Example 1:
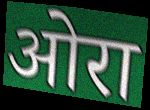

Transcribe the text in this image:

ओरा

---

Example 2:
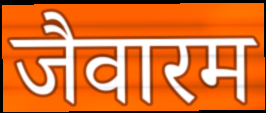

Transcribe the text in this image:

जैवारम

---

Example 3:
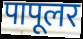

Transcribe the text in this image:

पापूलर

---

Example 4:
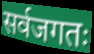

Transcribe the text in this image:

सर्वजगतः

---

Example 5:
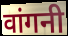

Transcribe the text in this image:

वांगनी